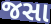
જસા